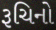
રૂચિનો